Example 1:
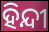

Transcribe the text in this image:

ହିନ୍ଦୀ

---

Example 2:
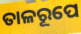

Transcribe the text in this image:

ତାଳରୂପେ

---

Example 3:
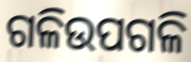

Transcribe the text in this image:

ଗଳିଉପଗଳି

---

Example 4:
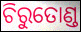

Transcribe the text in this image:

ଚିରୁତୋଣ୍ଡ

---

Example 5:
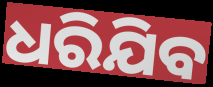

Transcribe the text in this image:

ଧରିଯିବ